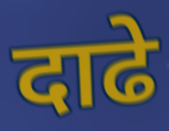
दाढे